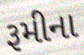
રૂમીના